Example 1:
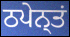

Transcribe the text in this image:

ਠਪੇਨ੍ਤਂ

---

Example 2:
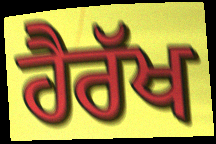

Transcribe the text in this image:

ਹੈਰੱਖ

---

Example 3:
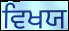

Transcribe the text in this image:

ਵਿਖਯ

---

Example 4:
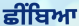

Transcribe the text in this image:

ਛੀਂਬਿਆ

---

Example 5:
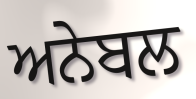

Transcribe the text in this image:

ਅਨੇਬਲ